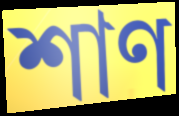
শাণ